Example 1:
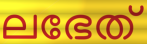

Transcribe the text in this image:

ലഭേത്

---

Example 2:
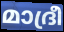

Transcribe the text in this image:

മാദ്രീ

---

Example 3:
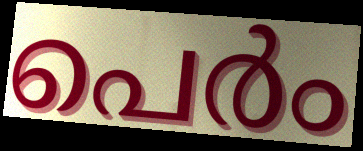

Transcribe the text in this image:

പെർം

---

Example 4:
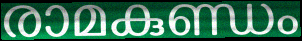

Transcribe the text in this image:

രാമകുണ്ഡം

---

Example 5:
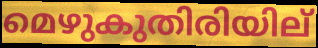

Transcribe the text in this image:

മെഴുകുതിരിയില്